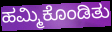
ಹಮ್ಮಿಕೊಂಡಿತು